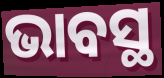
ଭାବସ୍ଥ